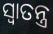
ସ୍ୱାତନ୍ତ୍ର